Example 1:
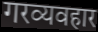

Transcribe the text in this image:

गरव्यवहार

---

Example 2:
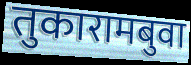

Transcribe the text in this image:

तुकारामबुवा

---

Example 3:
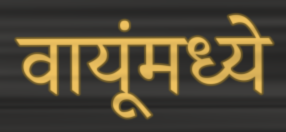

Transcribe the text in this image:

वायूंमध्ये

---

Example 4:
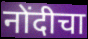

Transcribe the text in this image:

नोंदीचा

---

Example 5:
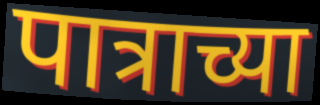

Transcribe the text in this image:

पात्राच्या